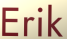
Erik